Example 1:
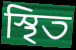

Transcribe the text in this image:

স্থিত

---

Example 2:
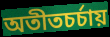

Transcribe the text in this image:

অতীতচর্চায়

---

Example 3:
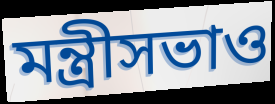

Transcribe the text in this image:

মন্ত্রীসভাও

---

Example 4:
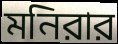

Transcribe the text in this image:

মনিরার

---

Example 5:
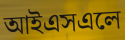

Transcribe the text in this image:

আইএসএলে